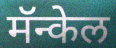
मॅन्केल